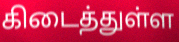
கிடைத்துள்ள